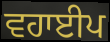
ਵਹਾਈਪ